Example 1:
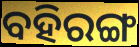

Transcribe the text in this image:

ବହିରଙ୍ଗ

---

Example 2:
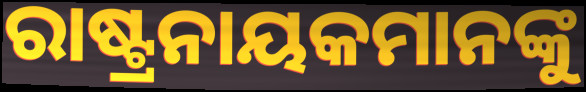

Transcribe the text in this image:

ରାଷ୍ଟ୍ରନାୟକମାନଙ୍କୁ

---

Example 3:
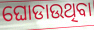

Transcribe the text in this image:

ଘୋଡାଉଥିବା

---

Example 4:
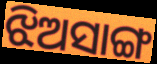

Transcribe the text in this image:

ଝିଅସାଙ୍ଗ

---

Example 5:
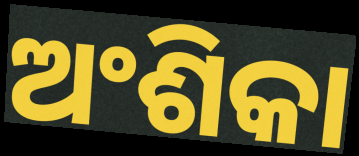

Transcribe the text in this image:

ଅଂଶିକା